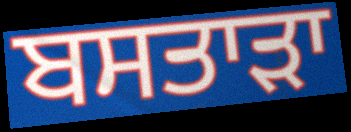
ਬਸਤਾੜਾ